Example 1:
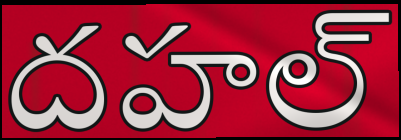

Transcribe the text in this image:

దహల్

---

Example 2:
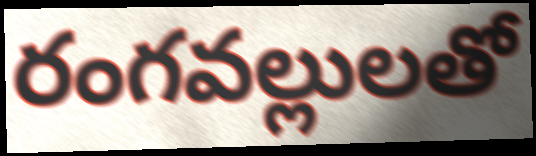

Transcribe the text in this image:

రంగవల్లులతో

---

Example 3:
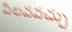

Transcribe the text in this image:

పిలవవచ్చు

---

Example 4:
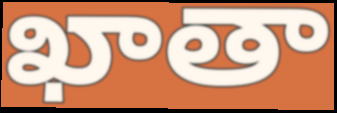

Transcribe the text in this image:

ఖాతా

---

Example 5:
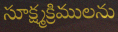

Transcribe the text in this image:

సూక్ష్మక్రిములను